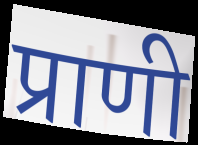
प्राणी